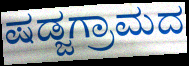
ಷಡ್ಜಗ್ರಾಮದ